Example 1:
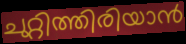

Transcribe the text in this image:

ചുറ്റിത്തിരിയാൻ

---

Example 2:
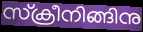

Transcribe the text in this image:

സ്ക്രീനിങ്ങിനു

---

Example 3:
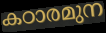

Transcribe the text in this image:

കഠാരമുന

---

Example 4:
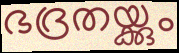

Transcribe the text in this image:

ഭദ്രതയ്ക്കും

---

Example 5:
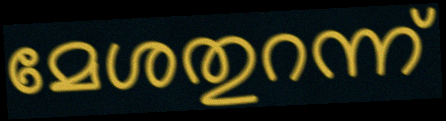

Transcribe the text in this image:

മേശതുറന്ന്